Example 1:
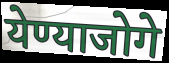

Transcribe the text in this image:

येण्याजोगे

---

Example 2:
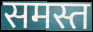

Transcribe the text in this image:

समस्त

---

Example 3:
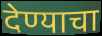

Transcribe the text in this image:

देण्याचा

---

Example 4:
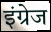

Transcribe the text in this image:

इंग्रेज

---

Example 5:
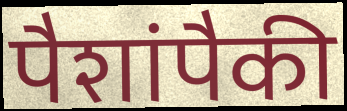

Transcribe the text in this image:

पैशांपैकी